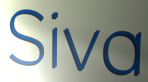
Siva